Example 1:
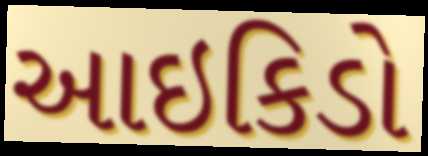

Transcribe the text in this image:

આઇકિડો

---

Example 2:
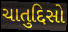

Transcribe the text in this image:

ચાતુદ્દિસો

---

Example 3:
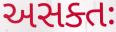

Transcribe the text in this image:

અસક્તઃ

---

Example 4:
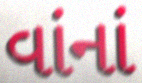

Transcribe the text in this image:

વાંનાં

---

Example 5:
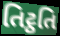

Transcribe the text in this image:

તિટ્ઠતિ